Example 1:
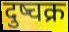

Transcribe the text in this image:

दुष्चक्र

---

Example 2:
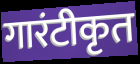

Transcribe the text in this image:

गारंटीकृत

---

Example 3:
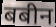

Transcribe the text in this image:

बबीन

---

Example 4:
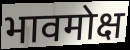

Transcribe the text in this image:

भावमोक्ष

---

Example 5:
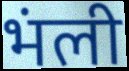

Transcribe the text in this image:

भंली